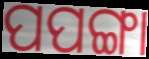
ପପଙ୍ଗା